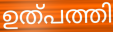
ഉത്പത്തി